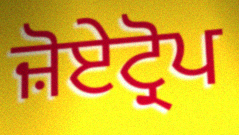
ਜ਼ੋਏਟ੍ਰੋਪ